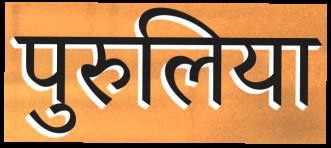
पुरुलिया